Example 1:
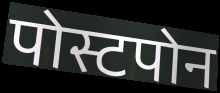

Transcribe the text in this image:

पोस्टपोन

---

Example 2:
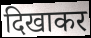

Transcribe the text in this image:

दिखाकर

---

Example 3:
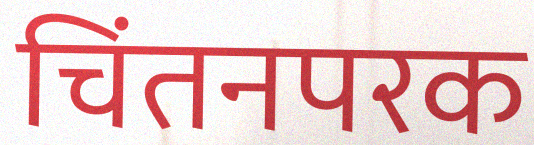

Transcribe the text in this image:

चिंतनपरक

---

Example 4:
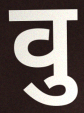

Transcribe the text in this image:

वु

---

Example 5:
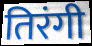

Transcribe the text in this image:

तिरंगी